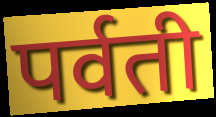
पर्वती